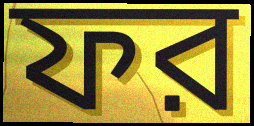
ফর